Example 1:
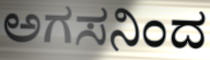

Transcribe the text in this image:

ಅಗಸನಿಂದ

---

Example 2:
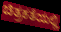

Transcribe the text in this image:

ಚಿತ್ರಕತೆಯಲ್ಲಿ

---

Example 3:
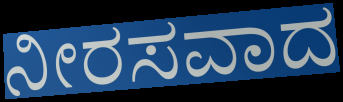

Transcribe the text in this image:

ನೀರಸವಾದ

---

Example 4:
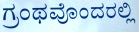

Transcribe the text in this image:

ಗ್ರಂಥವೊಂದರಲ್ಲಿ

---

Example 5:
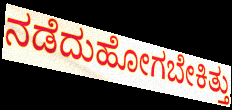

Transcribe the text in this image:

ನಡೆದುಹೋಗಬೇಕಿತ್ತು